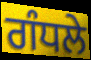
ਗੰਧਲੇ